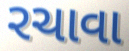
રચાવા